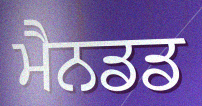
ਮੈਨਡਡ